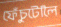
ফেঁচুটোলৈ